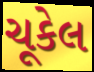
ચૂકેલ